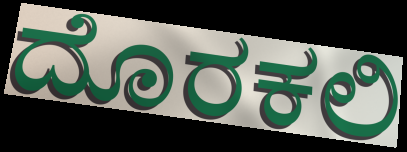
ದೊರಕಲಿ